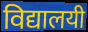
विद्यालयी